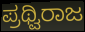
ಪ್ರಥ್ವಿರಾಜ